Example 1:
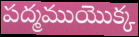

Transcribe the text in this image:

పద్మముయొక్క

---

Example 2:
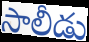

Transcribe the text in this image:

సాలీడు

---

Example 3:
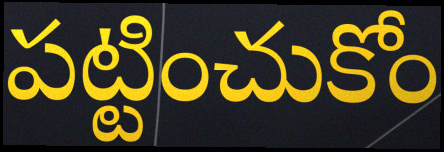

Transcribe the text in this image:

పట్టించుకోం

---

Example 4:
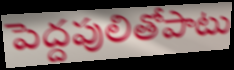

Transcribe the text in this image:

పెద్దపులితోపాటు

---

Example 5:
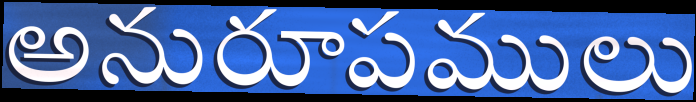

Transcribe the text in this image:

అనురూపములు